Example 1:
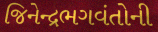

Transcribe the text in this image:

જિનેન્દ્રભગવંતોની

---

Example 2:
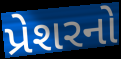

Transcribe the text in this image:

પ્રેશરનો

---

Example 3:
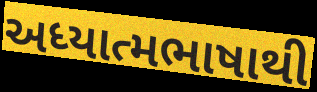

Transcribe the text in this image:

અધ્યાત્મભાષાથી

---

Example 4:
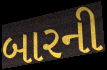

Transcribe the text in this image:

બારની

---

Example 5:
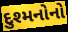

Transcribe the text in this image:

દુશ્મનોનો